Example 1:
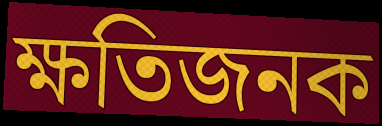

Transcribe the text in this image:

ক্ষতিজনক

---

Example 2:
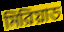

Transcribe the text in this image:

মিরিয়াড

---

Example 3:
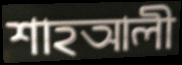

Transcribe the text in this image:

শাহআলী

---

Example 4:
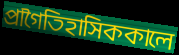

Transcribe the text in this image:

প্রাগৈতিহাসিককালে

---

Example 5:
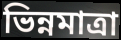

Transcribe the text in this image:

ভিন্নমাত্রা